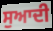
ਸੁਆਦੀ